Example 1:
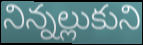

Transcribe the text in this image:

నిన్నల్లుకుని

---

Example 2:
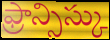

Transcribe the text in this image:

ఫ్రాన్సిస్కు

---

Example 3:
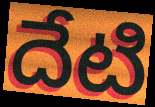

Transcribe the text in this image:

దేటి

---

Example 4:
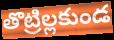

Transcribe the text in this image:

తొట్రిల్లకుండ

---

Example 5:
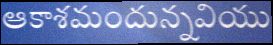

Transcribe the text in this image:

ఆకాశమందున్నవియు